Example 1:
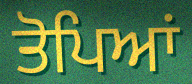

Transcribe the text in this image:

ਤੋਪਿਆਂ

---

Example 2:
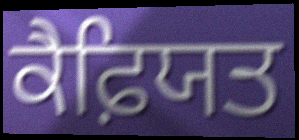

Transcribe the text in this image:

ਕੈਫ਼ਿਯਤ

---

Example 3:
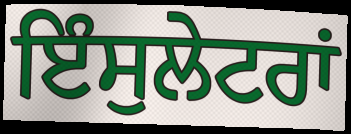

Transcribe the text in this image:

ਇੰਸੁਲੇਟਰਾਂ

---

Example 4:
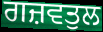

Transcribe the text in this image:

ਗਜ਼ਵਤੁਲ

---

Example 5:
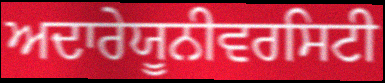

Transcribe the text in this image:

ਅਦਾਰੇਯੂਨੀਵਰਸਿਟੀ